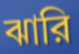
ঝারি